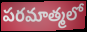
పరమాత్మలో